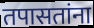
तपासतांना